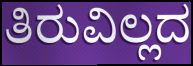
ತಿರುವಿಲ್ಲದ